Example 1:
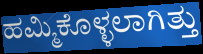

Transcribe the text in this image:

ಹಮ್ಮಿಕೊಳ್ಳಲಾಗಿತ್ತು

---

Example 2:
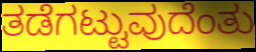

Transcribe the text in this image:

ತಡೆಗಟ್ಟುವುದೆಂತು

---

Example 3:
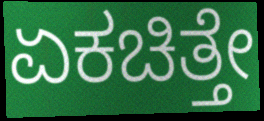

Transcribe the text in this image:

ಏಕಚಿತ್ತೇ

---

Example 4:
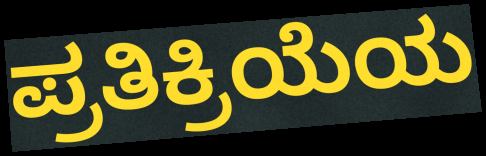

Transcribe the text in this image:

ಪ್ರತಿಕ್ರಿಯೆಯ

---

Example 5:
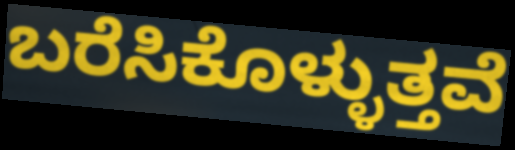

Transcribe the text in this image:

ಬರೆಸಿಕೊಳ್ಳುತ್ತವೆ